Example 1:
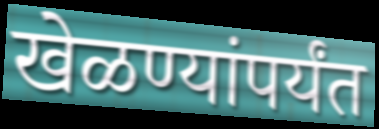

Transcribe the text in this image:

खेळण्यांपर्यंत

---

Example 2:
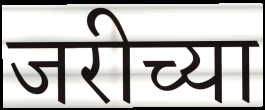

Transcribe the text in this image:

जरीच्या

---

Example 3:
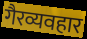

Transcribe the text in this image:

गैरव्यवहार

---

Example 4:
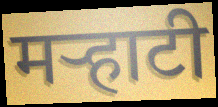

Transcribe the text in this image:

मऱ्हाटी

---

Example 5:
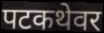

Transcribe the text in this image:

पटकथेवर